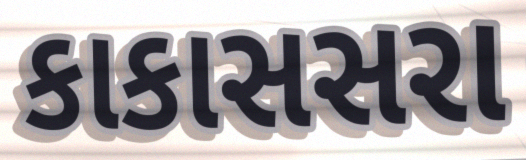
કાકાસસરા